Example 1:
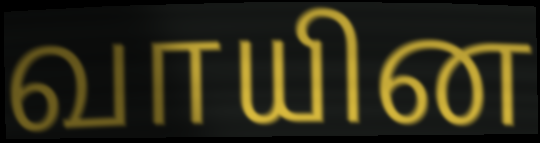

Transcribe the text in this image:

வாயின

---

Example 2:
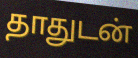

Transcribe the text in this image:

தாதுடன்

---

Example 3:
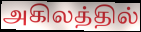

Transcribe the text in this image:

அகிலத்தில்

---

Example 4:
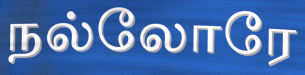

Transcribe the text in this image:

நல்லோரே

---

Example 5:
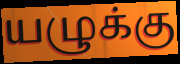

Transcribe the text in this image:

யழுக்கு